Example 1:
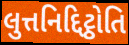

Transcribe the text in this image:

લુત્તનિદ્દિટ્ઠોતિ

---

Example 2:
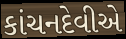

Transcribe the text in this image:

કાંચનદેવીએ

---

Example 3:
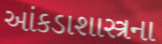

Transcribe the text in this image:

આંકડાશાસ્ત્રના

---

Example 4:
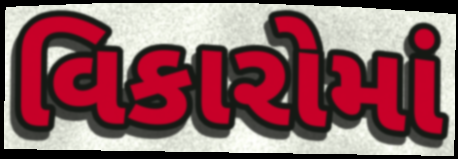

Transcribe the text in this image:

વિકારોમાં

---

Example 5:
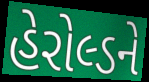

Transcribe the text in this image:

હેરોલ્ડને